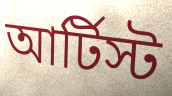
আর্টিস্ট